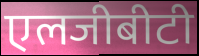
एलजीबीटी